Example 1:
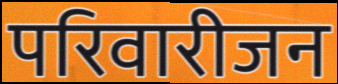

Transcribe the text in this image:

परिवारीजन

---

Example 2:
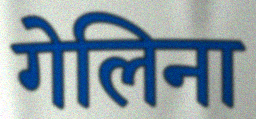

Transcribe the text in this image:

गेलिना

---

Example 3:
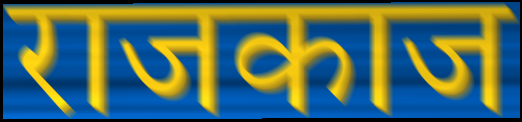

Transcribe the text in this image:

राजकाज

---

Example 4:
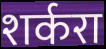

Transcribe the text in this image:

शर्करा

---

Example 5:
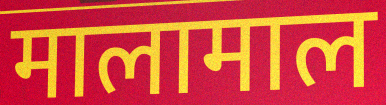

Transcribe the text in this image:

मालामाल